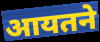
आयतने